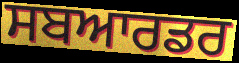
ਸਬਆਰਡਰ